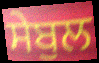
ਸੇਬੁਲ